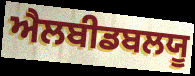
ਐਲਬੀਡਬਲਯੂ